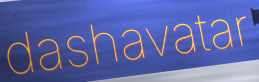
dashavatar